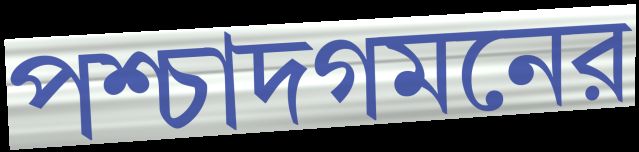
পশ্চাদগমনের